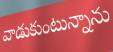
వాడుకుంటున్నాను